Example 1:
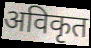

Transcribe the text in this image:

अविकृत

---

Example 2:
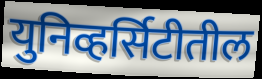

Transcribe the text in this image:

युनिव्हर्सिटीतील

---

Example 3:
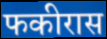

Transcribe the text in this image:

फकीरास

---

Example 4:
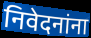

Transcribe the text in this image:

निवेदनांना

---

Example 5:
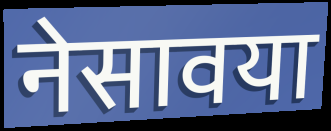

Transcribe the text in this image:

नेसावया